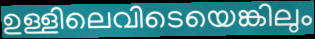
ഉള്ളിലെവിടെയെങ്കിലും